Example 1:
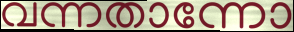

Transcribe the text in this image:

വന്നതാന്നോ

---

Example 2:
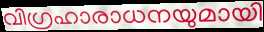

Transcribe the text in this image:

വിഗ്രഹാരാധനയുമായി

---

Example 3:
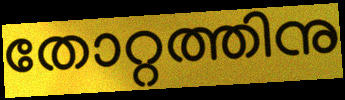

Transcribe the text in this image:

തോറ്റത്തിനു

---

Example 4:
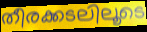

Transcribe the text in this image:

തീരക്കടലിലൂടെ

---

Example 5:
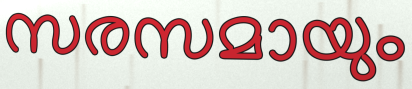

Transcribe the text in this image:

സരസമായും